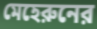
মেহেরুনের